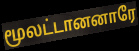
மூலட்டானனாரே